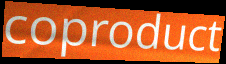
coproduct